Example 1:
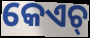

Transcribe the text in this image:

କେଏଚ୍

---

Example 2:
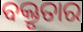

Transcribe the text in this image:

ବକ୍ତୃତାର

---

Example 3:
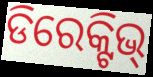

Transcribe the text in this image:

ଡିରେକ୍ଟିଭ୍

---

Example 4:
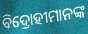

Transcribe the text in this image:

ବିଦ୍ରୋହୀମାନଙ୍କ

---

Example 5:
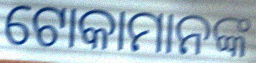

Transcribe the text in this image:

ଟୋକାମାନଙ୍କ